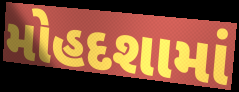
મોહદશામાં